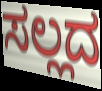
ಸಲ್ಲದ